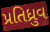
પ્રતિધ્રુવ